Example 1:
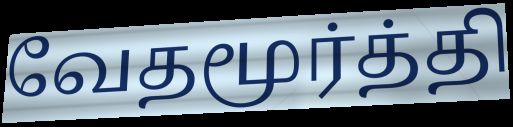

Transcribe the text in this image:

வேதமூர்த்தி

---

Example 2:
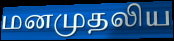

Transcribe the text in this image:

மனமுதலிய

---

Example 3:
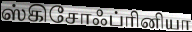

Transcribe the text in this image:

ஸ்கிசோஃப்ரினியா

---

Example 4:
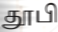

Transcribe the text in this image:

தூபி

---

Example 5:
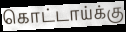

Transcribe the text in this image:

கொட்டாய்க்கு